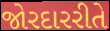
જોરદારરીતે